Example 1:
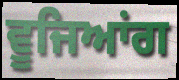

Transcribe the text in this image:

ਵੂਜਿਆਂਗ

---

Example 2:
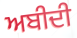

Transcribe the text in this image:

ਅਬੀਦੀ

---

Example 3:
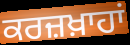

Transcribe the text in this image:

ਕਰਜ਼ਖ਼ਾਹਾਂ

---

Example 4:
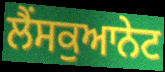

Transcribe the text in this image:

ਲੈਂਸਕੁਆਨੇਟ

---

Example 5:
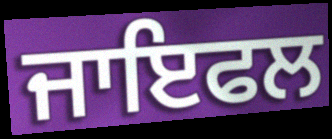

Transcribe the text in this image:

ਜਾਇਫਲ